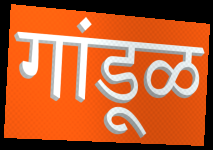
गांडूळ